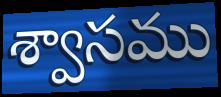
శ్వాసము